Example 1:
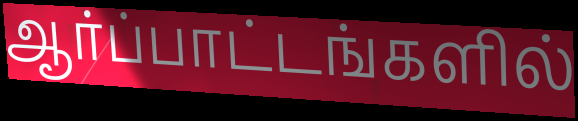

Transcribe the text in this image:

ஆர்ப்பாட்டங்களில்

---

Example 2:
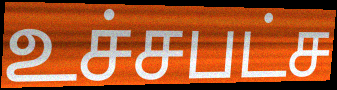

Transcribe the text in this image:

உச்சபட்ச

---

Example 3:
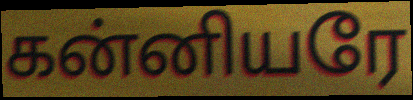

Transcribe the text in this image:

கன்னியரே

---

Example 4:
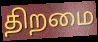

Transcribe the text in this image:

திறமை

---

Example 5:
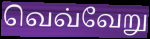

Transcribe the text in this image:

வெவ்வேறு